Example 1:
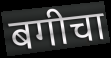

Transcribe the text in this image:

बगीचा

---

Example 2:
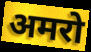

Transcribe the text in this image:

अमरो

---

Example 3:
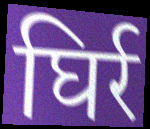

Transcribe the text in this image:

घिर्र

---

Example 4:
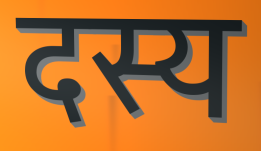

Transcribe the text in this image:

दस्य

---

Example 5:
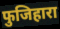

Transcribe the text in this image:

फुजिहारा